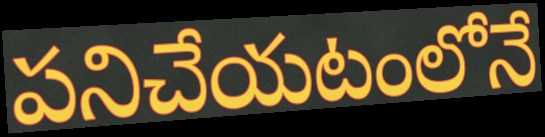
పనిచేయటంలోనే